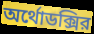
অর্থোডক্সির